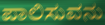
ಪಾಲಿಸುವನು